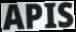
APIS